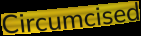
Circumcised